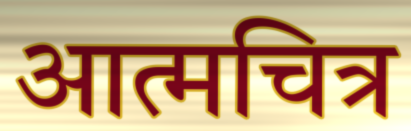
आत्मचित्र